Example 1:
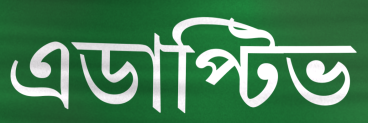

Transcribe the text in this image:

এডাপ্টিভ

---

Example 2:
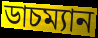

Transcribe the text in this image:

ডাচম্যান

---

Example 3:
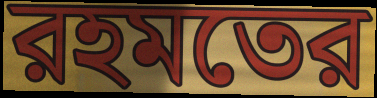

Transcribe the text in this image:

রহমতের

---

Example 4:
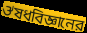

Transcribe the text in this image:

ঔষধবিজ্ঞানের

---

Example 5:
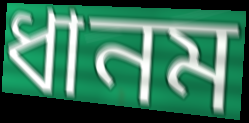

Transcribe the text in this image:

ধানম